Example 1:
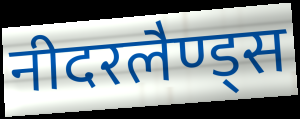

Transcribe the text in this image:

नीदरलैण्ड्स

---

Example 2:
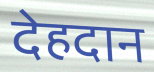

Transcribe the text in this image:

देहदान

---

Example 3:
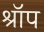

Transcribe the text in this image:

श्रॉप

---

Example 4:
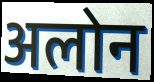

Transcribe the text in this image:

अलोन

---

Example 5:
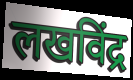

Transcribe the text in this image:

लखविंद्र